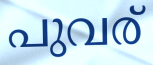
പുവര്